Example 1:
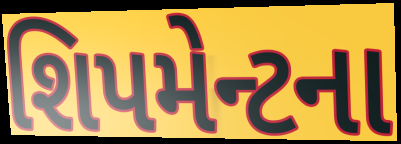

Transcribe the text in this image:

શિપમેન્ટના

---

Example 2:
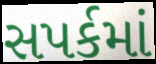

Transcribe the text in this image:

સપર્કમાં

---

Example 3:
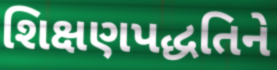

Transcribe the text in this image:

શિક્ષણપદ્ધતિને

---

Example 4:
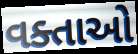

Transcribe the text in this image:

વક્તાઓ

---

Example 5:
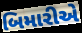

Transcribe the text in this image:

બિમારીએ